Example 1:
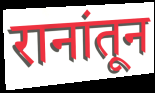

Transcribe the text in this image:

रानांतून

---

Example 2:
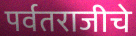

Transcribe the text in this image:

पर्वतराजीचे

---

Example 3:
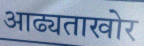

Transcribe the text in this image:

आढ्यताखोर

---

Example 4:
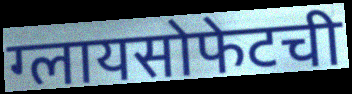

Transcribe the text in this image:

ग्लायसोफेटची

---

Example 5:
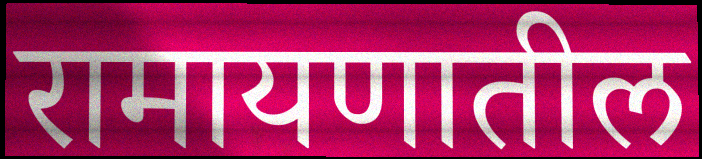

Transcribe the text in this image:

रामायणातील